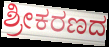
ಶ್ರೀಕರಣದ